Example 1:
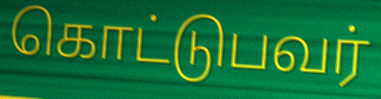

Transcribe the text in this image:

கொட்டுபவர்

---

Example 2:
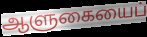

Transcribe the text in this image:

ஆளுகையைப்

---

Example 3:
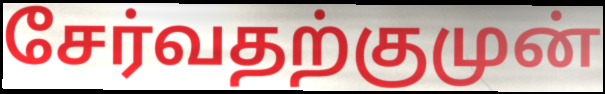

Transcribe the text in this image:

சேர்வதற்குமுன்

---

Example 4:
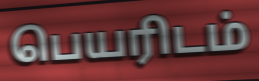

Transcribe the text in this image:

பெயரிடம்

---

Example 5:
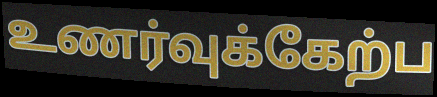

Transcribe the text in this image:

உணர்வுக்கேற்ப